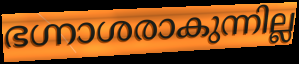
ഭഗ്നാശരാകുന്നില്ല